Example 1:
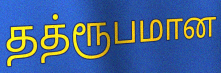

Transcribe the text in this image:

தத்ரூபமான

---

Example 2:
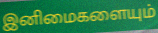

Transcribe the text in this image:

இனிமைகளையும்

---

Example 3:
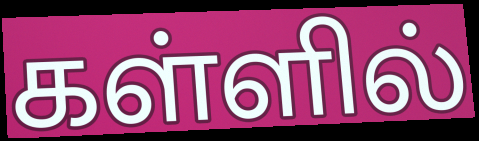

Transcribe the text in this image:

கள்ளில்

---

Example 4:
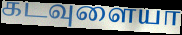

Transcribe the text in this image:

கடவுளையா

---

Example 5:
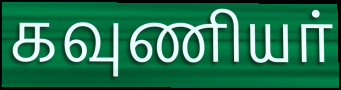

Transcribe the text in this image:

கவுணியர்